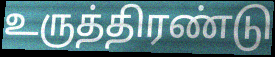
உருத்திரண்டு